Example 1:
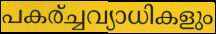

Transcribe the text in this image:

പകര്ച്ചവ്യാധികളും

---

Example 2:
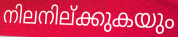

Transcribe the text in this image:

നിലനില്ക്കുകയും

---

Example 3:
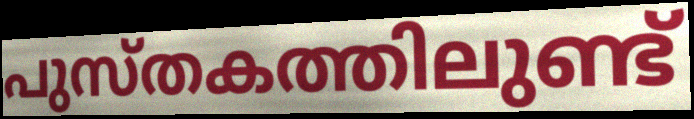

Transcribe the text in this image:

പുസ്തകത്തിലുണ്ട്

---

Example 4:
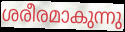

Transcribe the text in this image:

ശരീരമാകുന്നു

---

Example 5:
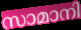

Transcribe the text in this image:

സാമാനി